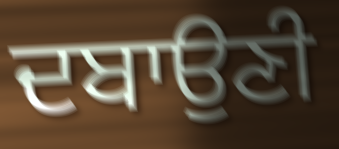
ਦਬਾਉਣੀ